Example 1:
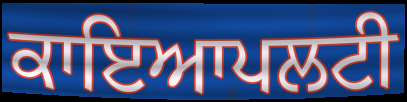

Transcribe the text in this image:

ਕਾਇਆਪਲਟੀ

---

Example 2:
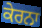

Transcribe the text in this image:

ਕੇਰਨਾ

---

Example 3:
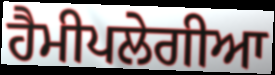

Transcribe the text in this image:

ਹੈਮੀਪਲੇਗੀਆ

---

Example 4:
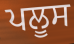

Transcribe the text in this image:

ਪਲੂਸ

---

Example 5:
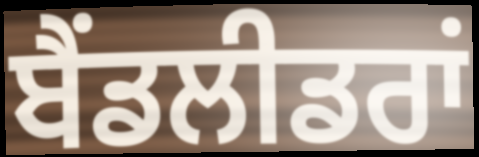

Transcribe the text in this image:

ਬੈਂਡਲੀਡਰਾਂ